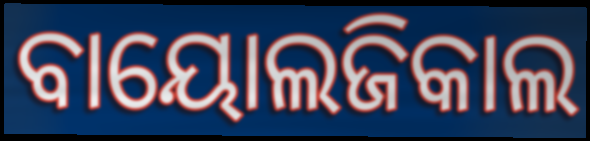
ବାୟୋଲଜିକାଲ